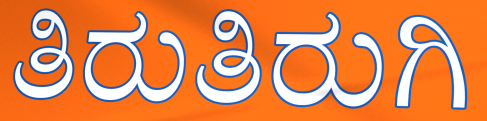
ತಿರುತಿರುಗಿ